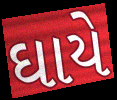
ઘાયે